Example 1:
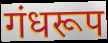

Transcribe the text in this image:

गंधरूप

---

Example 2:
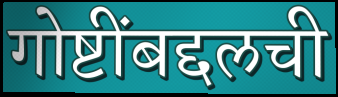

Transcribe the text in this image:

गोष्टींबद्दलची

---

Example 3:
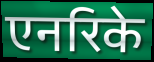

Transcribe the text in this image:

एनरिके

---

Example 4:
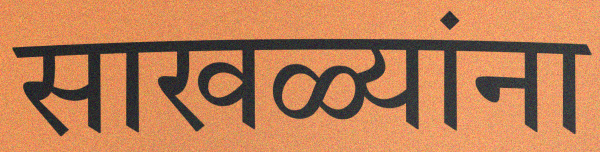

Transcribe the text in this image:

साखळ्यांना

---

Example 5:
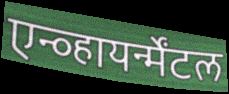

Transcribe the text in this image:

एन्व्हायर्न्मेंटल